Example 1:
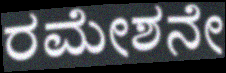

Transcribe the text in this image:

ರಮೇಶನೇ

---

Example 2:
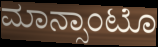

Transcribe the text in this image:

ಮಾನ್ಸಾಂಟೊ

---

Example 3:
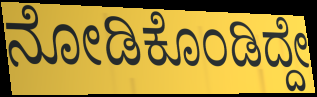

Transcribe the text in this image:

ನೋಡಿಕೊಂಡಿದ್ದೇ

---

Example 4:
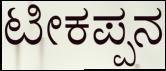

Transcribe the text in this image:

ಟೀಕಪ್ಪನ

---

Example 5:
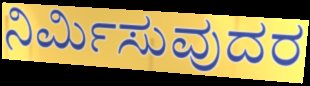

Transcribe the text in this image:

ನಿರ್ಮಿಸುವುದರ